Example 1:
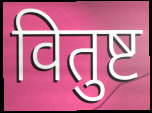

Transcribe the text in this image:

वितुष्ट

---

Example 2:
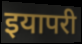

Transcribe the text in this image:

इयापरी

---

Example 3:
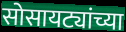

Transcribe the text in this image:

सोसायट्यांच्या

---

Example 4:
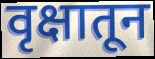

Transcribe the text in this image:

वृक्षातून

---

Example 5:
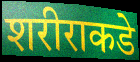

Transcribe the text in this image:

शरीराकडे